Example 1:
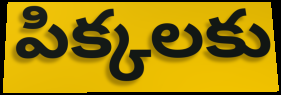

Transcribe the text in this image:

పిక్కలకు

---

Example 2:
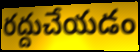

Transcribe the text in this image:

రద్దుచేయడం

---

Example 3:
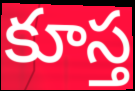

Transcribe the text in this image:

కూస్త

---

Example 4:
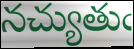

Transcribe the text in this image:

నచ్యుతుఁ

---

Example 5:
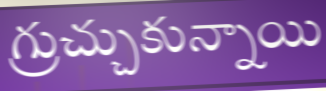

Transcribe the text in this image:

గ్రుచ్చుకున్నాయి